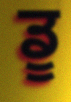
ਡੂ